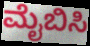
ಮೈಬಿಸಿ